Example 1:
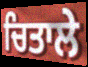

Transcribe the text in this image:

ਚਿਤਾਲੇ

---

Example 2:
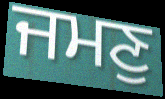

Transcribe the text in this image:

ਜਮਣੁ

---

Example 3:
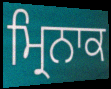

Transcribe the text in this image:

ਮ੍ਰਿਨਾਕ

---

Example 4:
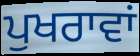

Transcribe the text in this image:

ਪੁਖਰਾਵਾਂ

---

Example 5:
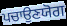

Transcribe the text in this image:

ਪਚਾਉਣਯੋਗ